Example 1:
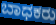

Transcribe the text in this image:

ಬಾಧಕರು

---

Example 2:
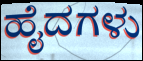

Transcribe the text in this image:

ಹೈದಗಳು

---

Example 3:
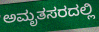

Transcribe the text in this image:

ಅಮೃತಸರದಲ್ಲಿ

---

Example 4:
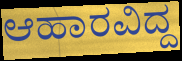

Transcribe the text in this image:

ಆಹಾರವಿದ್ದ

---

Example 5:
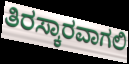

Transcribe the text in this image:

ತಿರಸ್ಕಾರವಾಗಲಿ